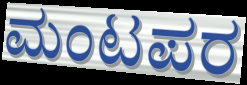
ಮಂಟಪರ